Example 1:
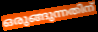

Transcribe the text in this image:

ഒരുങ്ങുന്നതിന്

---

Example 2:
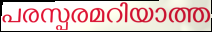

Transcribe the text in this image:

പരസ്പരമറിയാത്ത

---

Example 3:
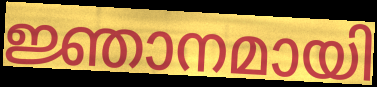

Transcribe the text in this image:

ജ്ഞാനമായി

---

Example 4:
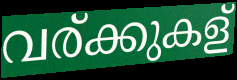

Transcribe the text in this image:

വര്ക്കുകള്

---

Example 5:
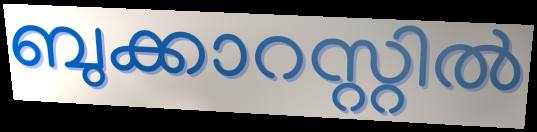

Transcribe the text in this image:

ബുക്കാറസ്റ്റിൽ